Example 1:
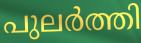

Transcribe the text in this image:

പുലർത്തി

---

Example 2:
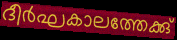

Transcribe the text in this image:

ദീർഘകാലത്തേക്കു്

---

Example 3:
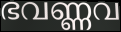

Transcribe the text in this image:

ഭവണ്ണവ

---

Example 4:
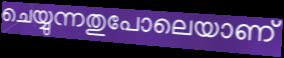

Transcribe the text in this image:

ചെയ്യുന്നതുപോലെയാണ്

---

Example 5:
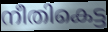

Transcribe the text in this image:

നീതികെട്ട